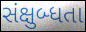
સંક્ષુબ્ધતા